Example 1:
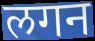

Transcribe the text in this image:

लगन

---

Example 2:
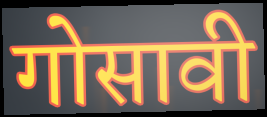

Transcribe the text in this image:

गोसावी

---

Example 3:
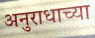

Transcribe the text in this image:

अनुराधाच्या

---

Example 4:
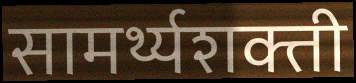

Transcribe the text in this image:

सामर्थ्यशक्ती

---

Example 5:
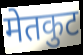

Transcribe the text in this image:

मेतकुट